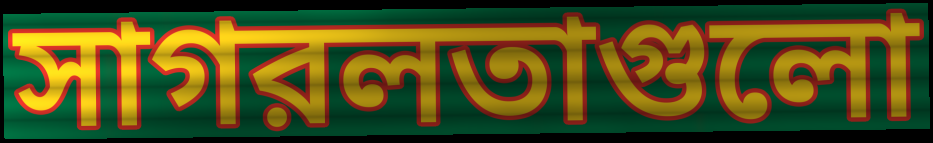
সাগরলতাগুলো